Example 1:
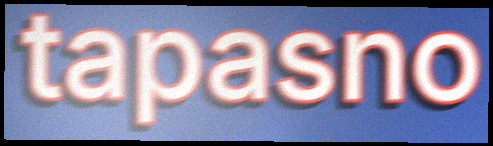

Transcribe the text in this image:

tapasno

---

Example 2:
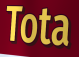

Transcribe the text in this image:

Tota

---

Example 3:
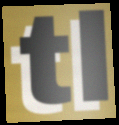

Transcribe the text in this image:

tl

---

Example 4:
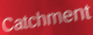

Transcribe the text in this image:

Catchment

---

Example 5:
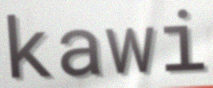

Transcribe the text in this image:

kawi